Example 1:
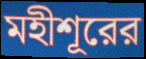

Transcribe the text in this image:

মহীশূরের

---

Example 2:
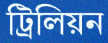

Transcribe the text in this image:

ট্রিলিয়ন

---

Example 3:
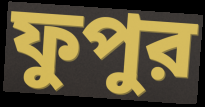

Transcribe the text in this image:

ফুপুর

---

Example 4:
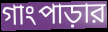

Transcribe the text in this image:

গাংপাড়ার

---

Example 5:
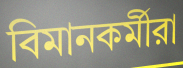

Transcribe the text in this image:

বিমানকর্মীরা